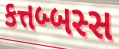
કત્તબ્બસ્સ